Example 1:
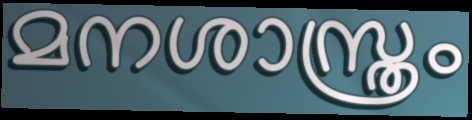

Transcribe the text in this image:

മനശാസ്ത്രം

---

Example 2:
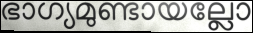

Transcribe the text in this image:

ഭാഗ്യമുണ്ടായല്ലോ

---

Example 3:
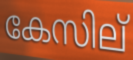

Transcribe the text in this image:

കേസില്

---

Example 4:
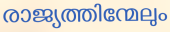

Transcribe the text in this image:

രാജ്യത്തിന്മേലും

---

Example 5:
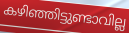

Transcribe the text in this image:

കഴിഞ്ഞിട്ടുണ്ടാവില്ല